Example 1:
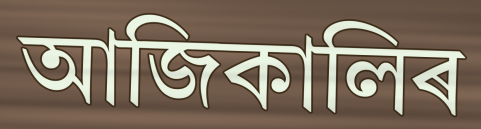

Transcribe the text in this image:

আজিকালিৰ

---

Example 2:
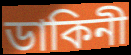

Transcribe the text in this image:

ডাকিনী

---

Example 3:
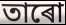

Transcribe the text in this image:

তাৰো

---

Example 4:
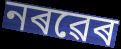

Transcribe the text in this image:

নৰৱেৰ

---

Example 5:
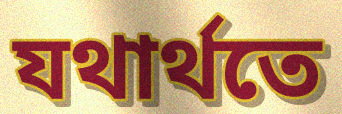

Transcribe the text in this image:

যথাৰ্থতে